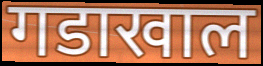
गडाखाल